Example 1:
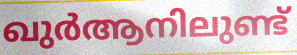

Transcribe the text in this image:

ഖുർആനിലുണ്ട്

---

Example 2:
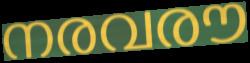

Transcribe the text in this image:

നരവരൗ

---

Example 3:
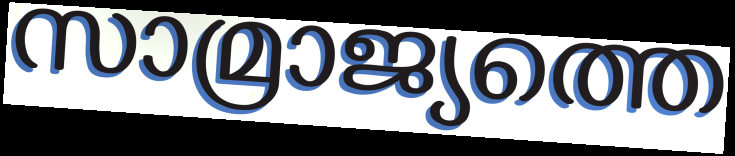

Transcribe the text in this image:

സാമ്രാജ്യത്തെ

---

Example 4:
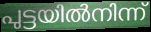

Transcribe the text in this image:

പുട്ടയിൽനിന്ന്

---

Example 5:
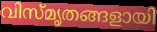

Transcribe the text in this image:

വിസ്മൃതങ്ങളായി